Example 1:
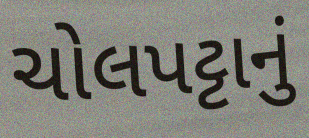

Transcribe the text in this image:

ચોલપટ્ટાનું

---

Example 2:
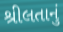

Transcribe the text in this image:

શ્રીલતાનું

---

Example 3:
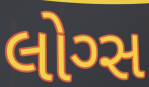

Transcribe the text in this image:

લોગ્સ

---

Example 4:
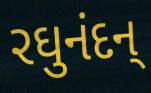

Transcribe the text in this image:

રઘુનંદન્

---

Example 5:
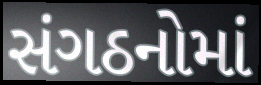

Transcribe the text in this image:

સંગઠનોમાં